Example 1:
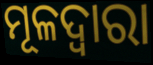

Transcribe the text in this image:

ମୂଳଦ୍ଵାରା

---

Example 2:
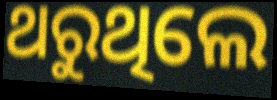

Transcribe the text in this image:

ଥରୁଥିଲେ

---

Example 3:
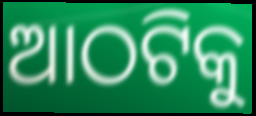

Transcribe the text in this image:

ଆଠଟିକୁ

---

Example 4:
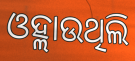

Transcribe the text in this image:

ଓହ୍ଲାଉଥିଲି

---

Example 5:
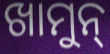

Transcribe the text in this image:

ଖାମୁନ୍